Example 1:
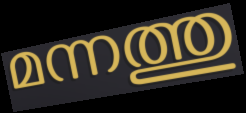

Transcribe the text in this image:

മന്നത്തു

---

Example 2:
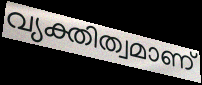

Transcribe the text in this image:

വ്യക്തിത്വമാണ്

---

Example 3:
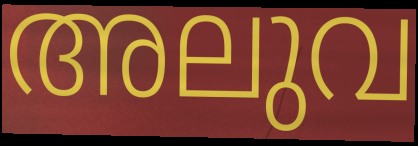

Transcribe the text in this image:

അലുവ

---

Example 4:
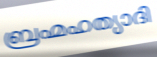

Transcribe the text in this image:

ബ്രഹ്മഹത്യാദി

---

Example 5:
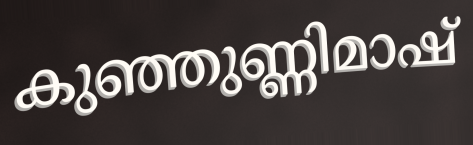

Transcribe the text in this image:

കുഞ്ഞുണ്ണിമാഷ്